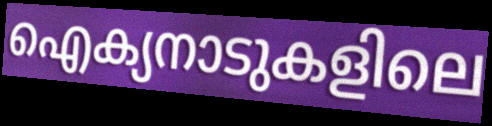
ഐക്യനാടുകളിലെ